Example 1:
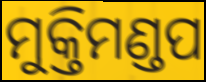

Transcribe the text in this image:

ମୁକ୍ତିମଣ୍ଡପ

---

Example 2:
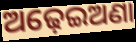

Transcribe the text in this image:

ଅଢ଼େଇଅଣା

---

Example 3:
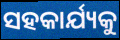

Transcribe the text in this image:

ସହକାର୍ଯ୍ୟକୁ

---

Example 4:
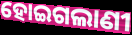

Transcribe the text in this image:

ହୋଇଗଲାଣୀ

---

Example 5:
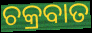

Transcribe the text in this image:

ଚକ୍ରବାତ